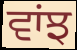
ਵਾਂਝ